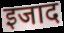
इजाद